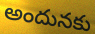
అందునకు